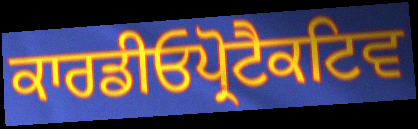
ਕਾਰਡੀਓਪ੍ਰੋਟੈਕਟਿਵ